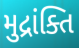
મુદ્રાંક્તિ